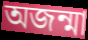
অজন্মা